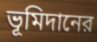
ভূমিদানের